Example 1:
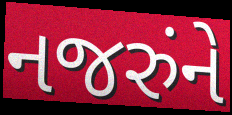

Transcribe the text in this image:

નજરુંને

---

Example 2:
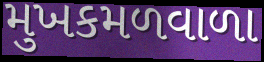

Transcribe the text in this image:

મુખકમળવાળા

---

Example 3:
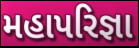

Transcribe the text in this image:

મહાપરિજ્ઞા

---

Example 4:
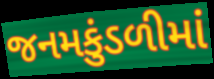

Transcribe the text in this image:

જનમકુંડળીમાં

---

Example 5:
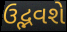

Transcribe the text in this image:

ઉદ્ભવશે